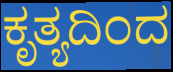
ಕೃತ್ಯದಿಂದ